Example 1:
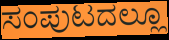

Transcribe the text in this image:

ಸಂಪುಟದಲ್ಲೂ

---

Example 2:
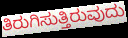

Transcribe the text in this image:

ತಿರುಗಿಸುತ್ತಿರುವುದು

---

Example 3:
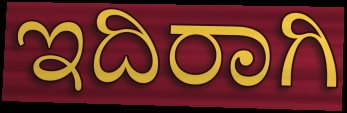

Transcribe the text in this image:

ಇದಿರಾಗಿ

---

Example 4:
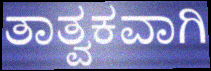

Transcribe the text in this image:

ತಾತ್ವಕವಾಗಿ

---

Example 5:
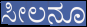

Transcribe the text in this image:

ಸೀಲನೂ